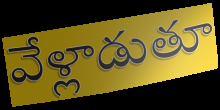
వేళ్లాడుతూ